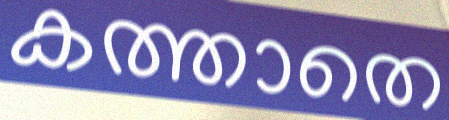
കത്താതെ